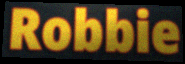
Robbie